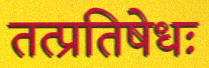
तत्प्रतिषेधः